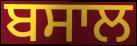
ਬਸਾਲ